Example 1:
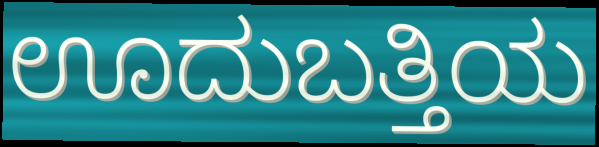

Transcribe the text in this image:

ಊದುಬತ್ತಿಯ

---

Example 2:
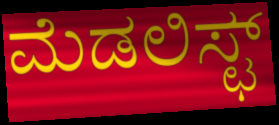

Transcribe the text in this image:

ಮೆಡಲಿಸ್ಟ್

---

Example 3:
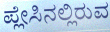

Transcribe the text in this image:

ಪ್ಲೇಸಿನಲ್ಲಿರುವ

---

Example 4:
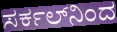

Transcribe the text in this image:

ಸರ್ಕಲ್‌ನಿಂದ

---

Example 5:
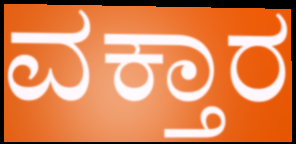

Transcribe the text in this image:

ವಕ್ತಾರ